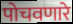
पोचवणारे